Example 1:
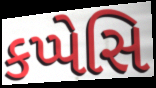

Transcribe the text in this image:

કપ્પેસિ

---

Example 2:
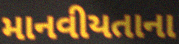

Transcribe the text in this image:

માનવીયતાના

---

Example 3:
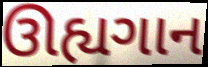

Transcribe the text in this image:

ઊહ્યગાન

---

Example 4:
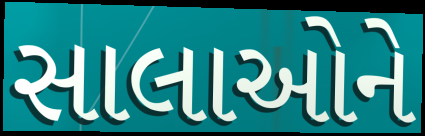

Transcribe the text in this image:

સાલાઓને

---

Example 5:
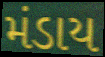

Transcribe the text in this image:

મંડાય